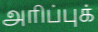
அரிப்புக்